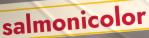
salmonicolor